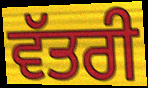
ਵੱਤਰੀ